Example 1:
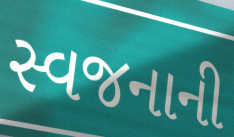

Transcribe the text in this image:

સ્વજનાની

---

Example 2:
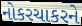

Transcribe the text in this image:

નોકરચાકરને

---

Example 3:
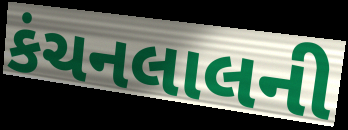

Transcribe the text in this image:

કંચનલાલની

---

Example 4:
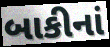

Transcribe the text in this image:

બાકીનાં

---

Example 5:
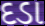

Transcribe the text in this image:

દડા